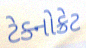
ટેક્નોક્રેટ